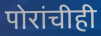
पोरांचीही